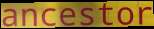
ancestor